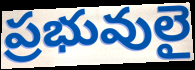
ప్రభువులై